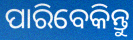
ପାରିବେକିନ୍ତୁ